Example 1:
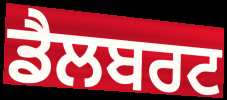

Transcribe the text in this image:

ਡੈਲਬਰਟ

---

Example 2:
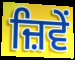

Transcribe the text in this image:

ਜ਼ਿਵੇਂ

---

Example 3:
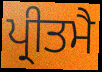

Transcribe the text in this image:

ਪ੍ਰੀਤਮੈ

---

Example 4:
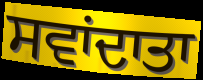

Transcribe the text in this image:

ਸਵਾਂਦਾਤਾ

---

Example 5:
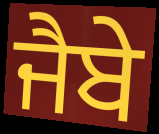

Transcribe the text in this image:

ਜੈਬੇ